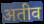
अतीव